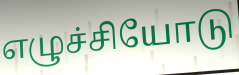
எழுச்சியோடு